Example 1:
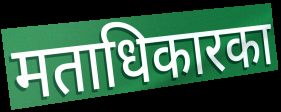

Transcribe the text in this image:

मताधिकारका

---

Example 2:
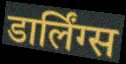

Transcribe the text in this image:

डार्लिंग्स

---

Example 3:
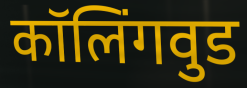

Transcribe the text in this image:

कॉलिंगवुड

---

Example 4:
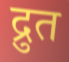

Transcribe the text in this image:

द्रुत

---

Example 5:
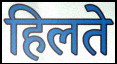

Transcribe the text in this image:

हिलते